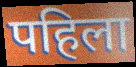
पहिला